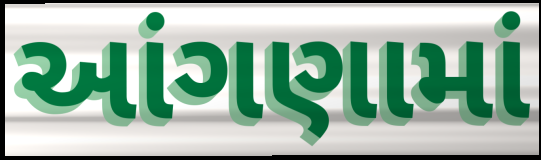
આંગણામાં